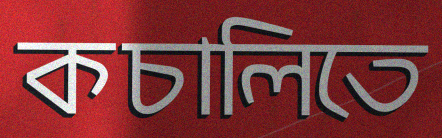
কচালিতে